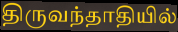
திருவந்தாதியில்